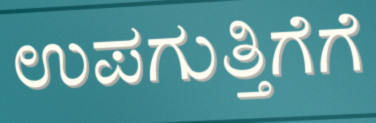
ಉಪಗುತ್ತಿಗೆಗೆ